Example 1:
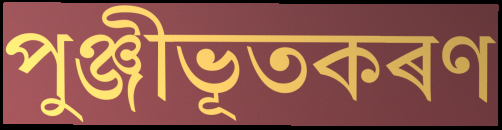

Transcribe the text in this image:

পুঞ্জীভূতকৰণ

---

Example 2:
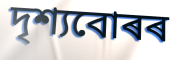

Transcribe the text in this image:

দৃশ্যবোৰৰ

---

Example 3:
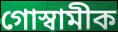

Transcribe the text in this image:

গোস্বামীক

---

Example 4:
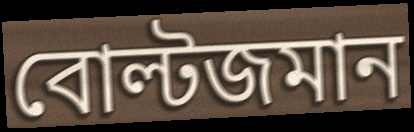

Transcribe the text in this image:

বোল্টজমান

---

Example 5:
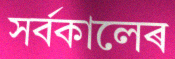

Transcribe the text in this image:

সৰ্বকালেৰ